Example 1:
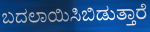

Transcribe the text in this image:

ಬದಲಾಯಿಸಿಬಿಡುತ್ತಾರೆ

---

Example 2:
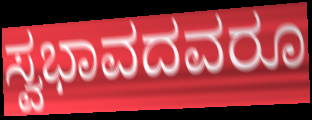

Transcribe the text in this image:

ಸ್ವಭಾವದವರೂ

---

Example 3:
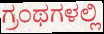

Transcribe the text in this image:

ಗ್ರಂಥಗಳಲ್ಲಿ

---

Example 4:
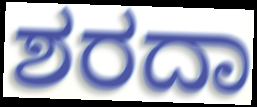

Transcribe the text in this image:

ಶರದಾ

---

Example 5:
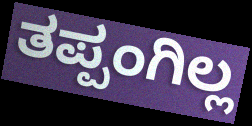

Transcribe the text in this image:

ತಪ್ಪಂಗಿಲ್ಲ